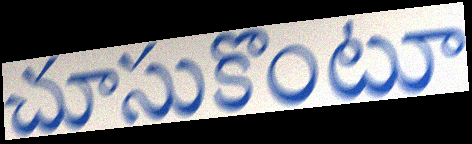
చూసుకొంటూ